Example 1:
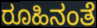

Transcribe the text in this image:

ರೂಹಿನಂತೆ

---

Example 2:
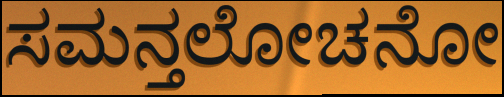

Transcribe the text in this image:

ಸಮನ್ತಲೋಚನೋ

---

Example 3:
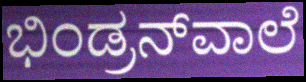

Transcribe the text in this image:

ಭಿಂಡ್ರನ್‌ವಾಲೆ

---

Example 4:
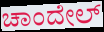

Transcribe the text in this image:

ಚಾಂದೇಲ್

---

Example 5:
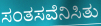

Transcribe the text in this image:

ಸಂತಸವೆನಿಸಿತು